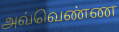
அவ்வெண்ண